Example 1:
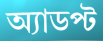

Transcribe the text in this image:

অ্যাডপ্ট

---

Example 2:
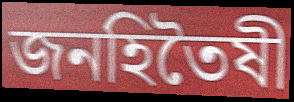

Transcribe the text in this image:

জনহিতৈষী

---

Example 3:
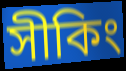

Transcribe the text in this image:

সীকিং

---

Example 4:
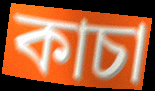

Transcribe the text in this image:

কাচা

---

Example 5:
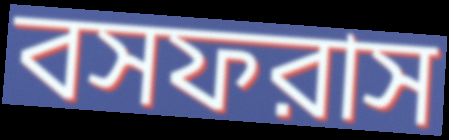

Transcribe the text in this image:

বসফরাস